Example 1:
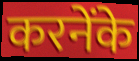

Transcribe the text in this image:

करनेंके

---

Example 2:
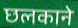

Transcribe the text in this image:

छलकाने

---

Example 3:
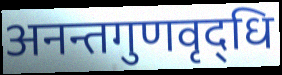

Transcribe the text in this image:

अनन्तगुणवृद्धि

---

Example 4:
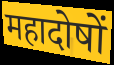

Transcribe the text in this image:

महादोषों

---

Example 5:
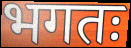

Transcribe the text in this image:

भगतः